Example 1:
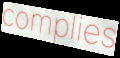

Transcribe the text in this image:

complies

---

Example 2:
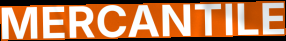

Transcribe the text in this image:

MERCANTILE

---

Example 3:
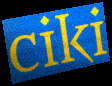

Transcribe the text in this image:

ciki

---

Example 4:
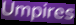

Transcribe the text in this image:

Umpires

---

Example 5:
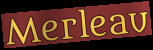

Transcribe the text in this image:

Merleau